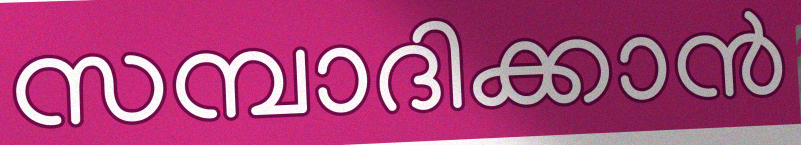
സമ്പാദിക്കാൻ